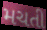
મચતી